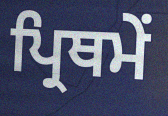
ਪ੍ਰਿਥਮੇਂ